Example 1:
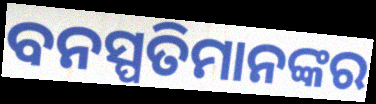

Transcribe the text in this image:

ବନସ୍ପତିମାନଙ୍କର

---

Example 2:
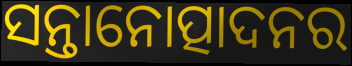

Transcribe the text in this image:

ସନ୍ତାନୋତ୍ପାଦନର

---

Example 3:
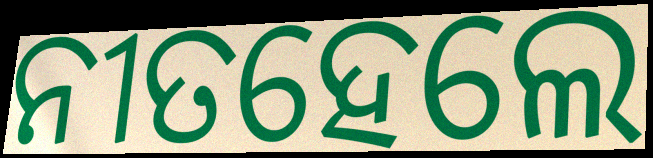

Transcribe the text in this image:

ନୀତହେଲେ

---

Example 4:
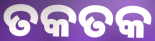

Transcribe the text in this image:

ତକତକ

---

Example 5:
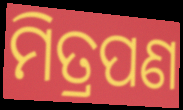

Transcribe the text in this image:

ମିତ୍ରପଣ